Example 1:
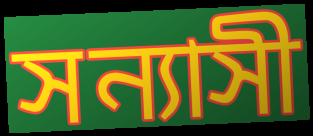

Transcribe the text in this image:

সন্যাসী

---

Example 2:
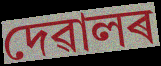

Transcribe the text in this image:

দেৱালৰ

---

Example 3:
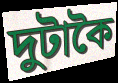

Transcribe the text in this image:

দুটাকৈ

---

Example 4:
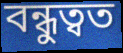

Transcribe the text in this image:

বন্ধুত্বত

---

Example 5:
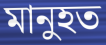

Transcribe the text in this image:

মানুহত